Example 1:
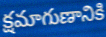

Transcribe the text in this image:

క్షమాగుణానికి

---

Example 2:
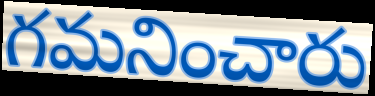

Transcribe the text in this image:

గమనించారు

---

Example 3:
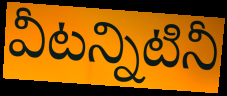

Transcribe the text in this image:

వీటన్నిటినీ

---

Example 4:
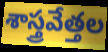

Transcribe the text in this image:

శాస్త్రవేత్తల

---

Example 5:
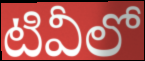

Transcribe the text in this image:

టివీలో